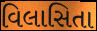
વિલાસિતા